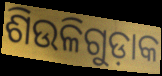
ଶିଉଳିଗୁଡ଼ାକ